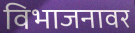
विभाजनावर